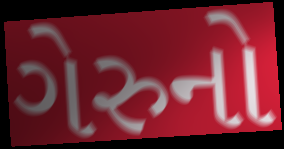
ગેરુનો